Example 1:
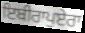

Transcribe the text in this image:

ਇਬੀਰਾਪੁਏਰਾ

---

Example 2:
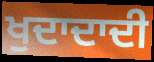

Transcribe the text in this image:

ਖੁਦਾਦਾਦੀ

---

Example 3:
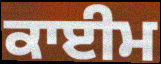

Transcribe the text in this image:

ਕਾਈਮ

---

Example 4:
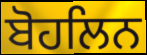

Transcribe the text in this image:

ਬੋਹਲਿਨ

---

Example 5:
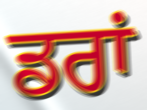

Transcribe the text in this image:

ਡਰਾਂ